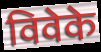
विवेके